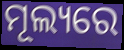
ମୂଲ୍ୟରେ